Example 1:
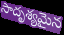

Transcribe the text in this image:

సాదృశ్యమైన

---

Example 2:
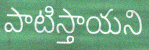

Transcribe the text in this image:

పాటిస్తాయని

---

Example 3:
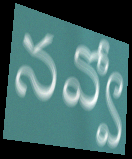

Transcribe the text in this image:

నవ్వో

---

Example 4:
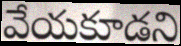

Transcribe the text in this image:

వేయకూడని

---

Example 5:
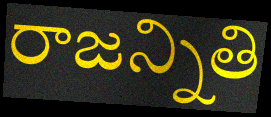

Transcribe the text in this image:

రాజన్నితి